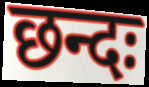
छन्दः